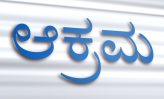
ಆಕ್ರಮ